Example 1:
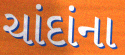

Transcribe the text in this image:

ચાંદાંના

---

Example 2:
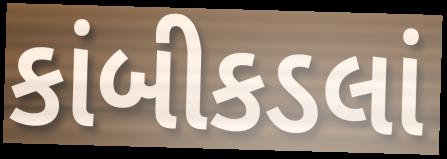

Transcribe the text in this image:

કાંબીકડલાં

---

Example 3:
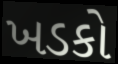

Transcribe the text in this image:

ખડકો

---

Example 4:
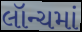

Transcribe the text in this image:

લૉન્ચમાં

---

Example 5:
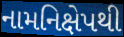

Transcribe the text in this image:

નામનિક્ષેપથી